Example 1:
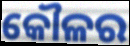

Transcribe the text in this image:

କୌଳର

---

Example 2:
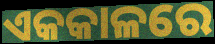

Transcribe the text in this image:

ଏକକାଳରେ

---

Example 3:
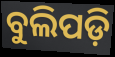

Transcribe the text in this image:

ବୁଲିପଡ଼ି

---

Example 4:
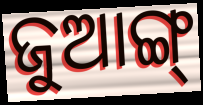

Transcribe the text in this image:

ଜୁଆଙ୍ଗ୍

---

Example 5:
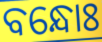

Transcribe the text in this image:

ବନ୍ଧୋଃ